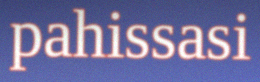
pahissasi